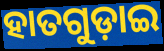
ହାତଗୁଡ଼ାଇ